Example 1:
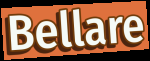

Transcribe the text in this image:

Bellare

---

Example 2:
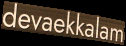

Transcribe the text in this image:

devaekkalam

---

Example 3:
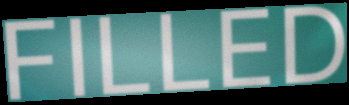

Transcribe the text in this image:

FILLED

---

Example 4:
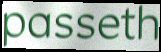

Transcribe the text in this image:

passeth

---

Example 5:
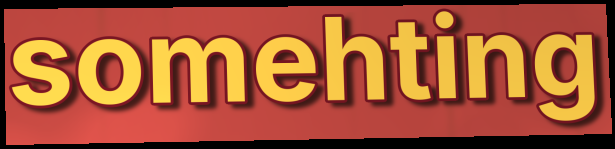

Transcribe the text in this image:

somehting